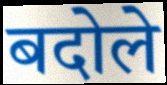
बदोले